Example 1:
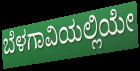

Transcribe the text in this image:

ಬೆಳಗಾವಿಯಲ್ಲಿಯೇ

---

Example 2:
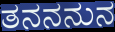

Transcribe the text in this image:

ತನನನುನ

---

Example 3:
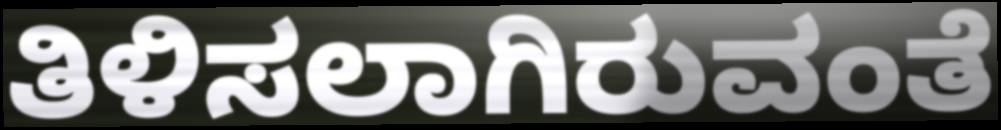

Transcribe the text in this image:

ತಿಳಿಸಲಾಗಿರುವಂತೆ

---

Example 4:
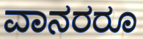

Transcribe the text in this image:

ವಾನರರೂ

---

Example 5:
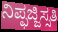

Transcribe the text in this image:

ನಿಪ್ಫಜ್ಜಿಸ್ಸತಿ